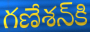
గణేశన్‍కి